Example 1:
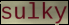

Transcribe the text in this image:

sulky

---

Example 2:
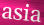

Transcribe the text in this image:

asia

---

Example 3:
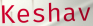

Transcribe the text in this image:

Keshav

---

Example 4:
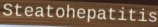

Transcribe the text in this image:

Steatohepatitis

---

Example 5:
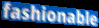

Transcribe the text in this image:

fashionable